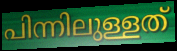
പിന്നിലുള്ളത്